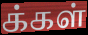
க்கள்